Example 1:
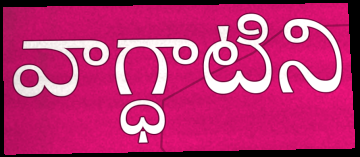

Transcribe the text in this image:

వాగ్ధాటిని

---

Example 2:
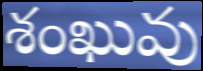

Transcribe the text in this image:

శంఖువు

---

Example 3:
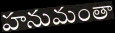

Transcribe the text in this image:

హనుమంతా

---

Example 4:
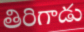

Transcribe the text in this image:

తిరిగాడు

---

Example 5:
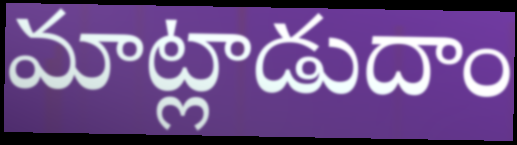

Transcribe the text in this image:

మాట్లాడుదాం